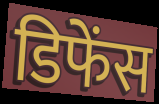
डिफेंस